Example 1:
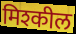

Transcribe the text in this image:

मिश्कील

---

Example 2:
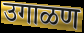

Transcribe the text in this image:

उगाळण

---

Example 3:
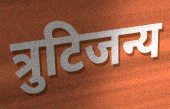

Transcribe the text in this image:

त्रुटिजन्य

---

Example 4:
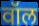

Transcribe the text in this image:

वॉल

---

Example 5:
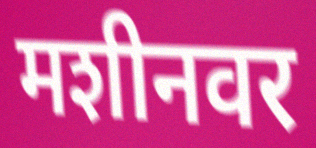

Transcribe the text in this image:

मशीनवर